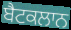
ਬੈਟਕਲਾਨ